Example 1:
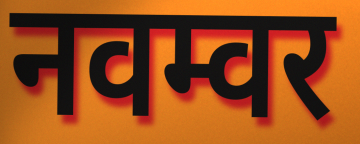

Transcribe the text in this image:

नवम्वर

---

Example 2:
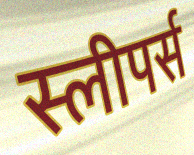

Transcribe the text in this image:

स्लीपर्स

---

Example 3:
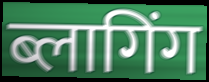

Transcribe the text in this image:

ब्लागिंग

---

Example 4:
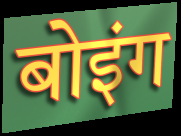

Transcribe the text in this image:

बोइंग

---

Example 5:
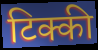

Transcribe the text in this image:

टिक्की